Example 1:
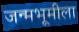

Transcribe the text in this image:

जन्मभूमीला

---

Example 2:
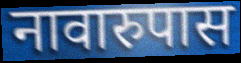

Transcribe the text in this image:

नावारुपास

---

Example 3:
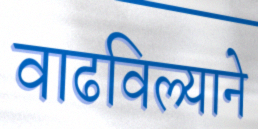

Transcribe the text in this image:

वाढविल्याने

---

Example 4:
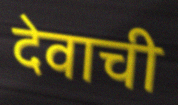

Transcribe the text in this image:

देवाची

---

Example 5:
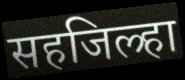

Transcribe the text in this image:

सहजिल्हा